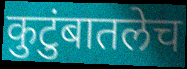
कुटुंबातलेच